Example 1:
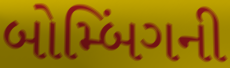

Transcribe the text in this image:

બોમ્બિંગની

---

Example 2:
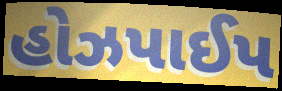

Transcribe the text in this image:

હોઝપાઈપ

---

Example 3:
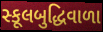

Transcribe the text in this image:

સ્કૂલબુદ્ધિવાળા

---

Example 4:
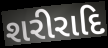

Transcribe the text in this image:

શરીરાદિ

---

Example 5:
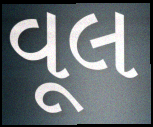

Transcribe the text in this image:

વૂલ